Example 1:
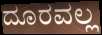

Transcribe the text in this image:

ದೂರವಲ್ಲ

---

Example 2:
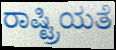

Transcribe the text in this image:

ರಾಷ್ಟ್ರಿಯತೆ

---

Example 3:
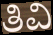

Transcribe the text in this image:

ತಿವಿ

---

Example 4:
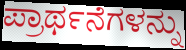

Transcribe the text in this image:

ಪ್ರಾರ್ಥನೆಗಳನ್ನು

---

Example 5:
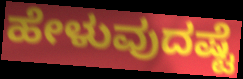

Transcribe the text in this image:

ಹೇಳುವುದಷ್ಟೆ